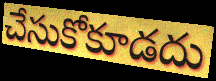
చేసుకోకూడదు